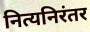
नित्यनिरंतर